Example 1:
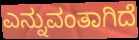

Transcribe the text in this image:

ಎನ್ನುವಂತಾಗಿದೆ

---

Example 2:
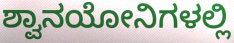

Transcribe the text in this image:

ಶ್ವಾನಯೋನಿಗಳಲ್ಲಿ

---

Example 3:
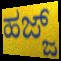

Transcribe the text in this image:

ಹಜ್ಜ್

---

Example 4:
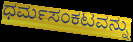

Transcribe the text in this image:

ಧರ್ಮಸಂಕಟವನ್ನು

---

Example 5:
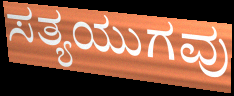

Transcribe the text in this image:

ಸತ್ಯಯುಗವು